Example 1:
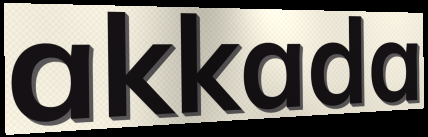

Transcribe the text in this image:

akkada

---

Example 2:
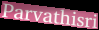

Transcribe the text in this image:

Parvathisri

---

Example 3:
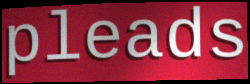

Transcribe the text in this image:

pleads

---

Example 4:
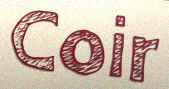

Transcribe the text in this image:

Coir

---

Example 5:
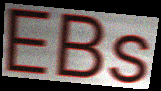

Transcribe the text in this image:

EBs